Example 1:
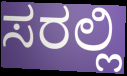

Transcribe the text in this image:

ಸರಲ್ಲಿ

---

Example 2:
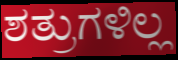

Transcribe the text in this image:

ಶತ್ರುಗಳಿಲ್ಲ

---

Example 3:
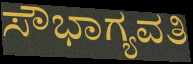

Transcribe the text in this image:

ಸೌಭಾಗ್ಯವತಿ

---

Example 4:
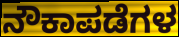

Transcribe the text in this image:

ನೌಕಾಪಡೆಗಳ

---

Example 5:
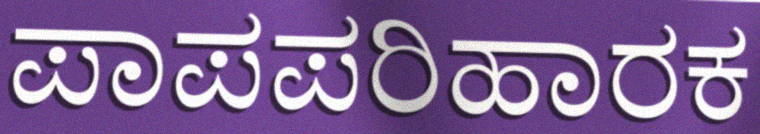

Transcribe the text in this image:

ಪಾಪಪರಿಹಾರಕ